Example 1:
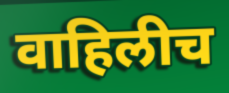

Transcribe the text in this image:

वाहिलीच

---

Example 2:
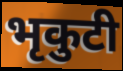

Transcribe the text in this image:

भृकुटी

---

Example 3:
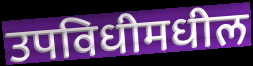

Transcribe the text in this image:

उपविधीमधील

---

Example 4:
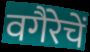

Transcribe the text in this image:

वगैरेचें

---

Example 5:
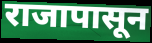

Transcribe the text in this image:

राजापासून